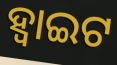
ହ୍ବାଇଟ